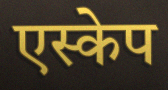
एस्केप